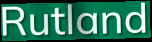
Rutland